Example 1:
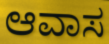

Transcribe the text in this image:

ಆವಾಸ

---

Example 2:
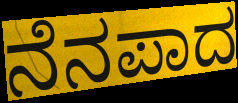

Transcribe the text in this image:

ನೆನಪಾದ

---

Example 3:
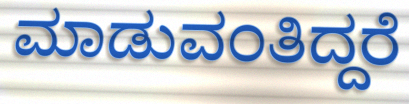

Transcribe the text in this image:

ಮಾಡುವಂತಿದ್ದರೆ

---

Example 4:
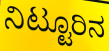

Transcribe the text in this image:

ನಿಟ್ಟೂರಿನ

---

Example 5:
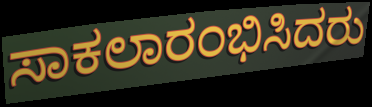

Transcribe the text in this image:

ಸಾಕಲಾರಂಭಿಸಿದರು